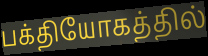
பக்தியோகத்தில்